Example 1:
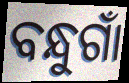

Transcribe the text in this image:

ବନ୍ଧୁଗାଁ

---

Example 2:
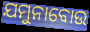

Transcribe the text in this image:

ଯମୁନାବୋଉ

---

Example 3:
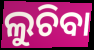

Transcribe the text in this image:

ଲୁଚିବା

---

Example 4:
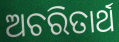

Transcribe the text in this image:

ଅଚରିତାର୍ଥ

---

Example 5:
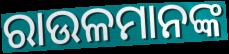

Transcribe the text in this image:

ରାଉଳମାନଙ୍କ